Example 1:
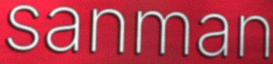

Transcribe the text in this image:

sanman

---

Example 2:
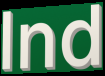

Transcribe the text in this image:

Ind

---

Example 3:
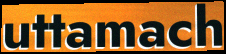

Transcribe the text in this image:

uttamach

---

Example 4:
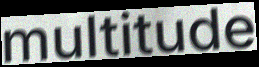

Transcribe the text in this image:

multitude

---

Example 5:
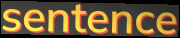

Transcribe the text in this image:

sentence